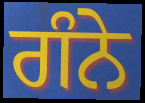
ਗੰਨੇ